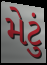
મેટું